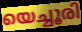
യെച്ചൂരി